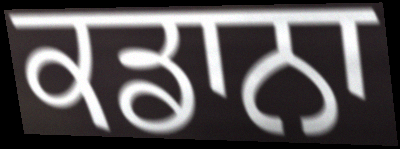
ਕਡਾਨਾ